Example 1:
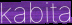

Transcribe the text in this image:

kabita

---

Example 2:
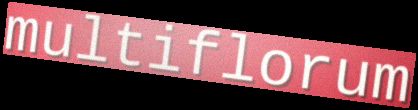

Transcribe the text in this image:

multiflorum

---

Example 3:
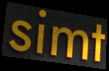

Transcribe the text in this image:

simt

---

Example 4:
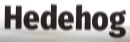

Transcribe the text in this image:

Hedehog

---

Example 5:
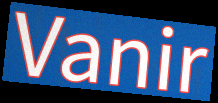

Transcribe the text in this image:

Vanir